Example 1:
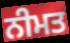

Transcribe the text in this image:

ਨੀਮਤ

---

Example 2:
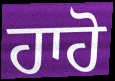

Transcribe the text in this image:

ਹਾਹੋ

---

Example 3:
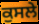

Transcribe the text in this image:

ਕੁਸਲੇ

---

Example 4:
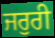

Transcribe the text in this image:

ਜਰੁਰੀ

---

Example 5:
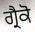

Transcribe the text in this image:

ਗ੍ਰੈਕੋ